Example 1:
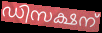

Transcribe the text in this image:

ഡിസക്ഷന്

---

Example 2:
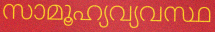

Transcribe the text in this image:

സാമൂഹ്യവ്യവസ്ഥ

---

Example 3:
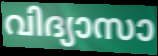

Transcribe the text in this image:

വിദ്യാസാ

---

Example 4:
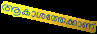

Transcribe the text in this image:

ആകാശത്തേക്കാണ്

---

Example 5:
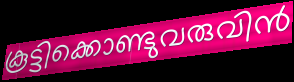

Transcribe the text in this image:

കൂട്ടിക്കൊണ്ടുവരുവിൻ